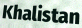
Khalistan